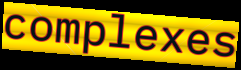
complexes